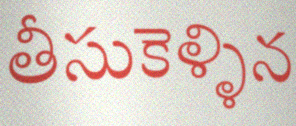
తీసుకెళ్ళిన